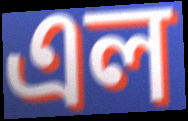
এল